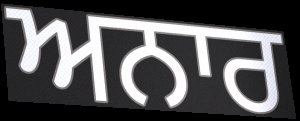
ਅਨਾਰ